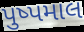
પુષ્પમાલ